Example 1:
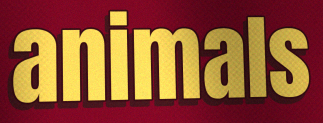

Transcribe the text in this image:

animals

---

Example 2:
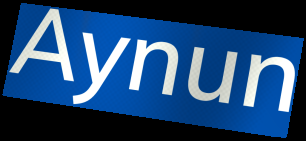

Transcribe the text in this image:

Aynun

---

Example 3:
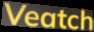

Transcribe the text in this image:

Veatch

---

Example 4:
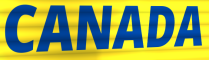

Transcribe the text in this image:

CANADA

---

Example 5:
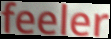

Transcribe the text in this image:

feeler